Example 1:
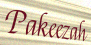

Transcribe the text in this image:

Pakeezah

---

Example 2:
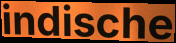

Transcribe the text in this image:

indische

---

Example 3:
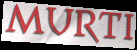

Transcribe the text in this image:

MURTI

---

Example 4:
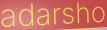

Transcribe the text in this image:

adarsho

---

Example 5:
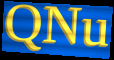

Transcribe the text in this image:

QNu